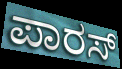
ಪಾರಸ್